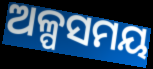
ଅଳ୍ପସମୟ